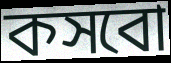
কসবো